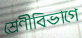
শ্রেণীবিভাগে